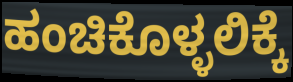
ಹಂಚಿಕೊಳ್ಳಲಿಕ್ಕೆ